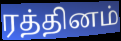
ரத்தினம்